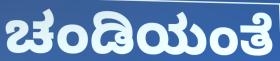
ಚಂಡಿಯಂತೆ